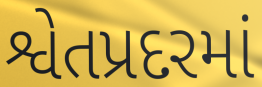
શ્વેતપ્રદરમાં